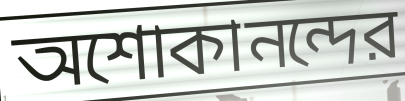
অশোকানন্দের